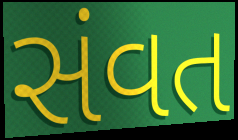
સંવત